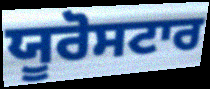
ਯੂਰੋਸਟਾਰ